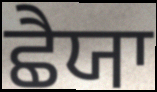
ਛੈਯਾ